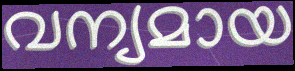
വന്യമായ